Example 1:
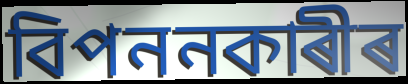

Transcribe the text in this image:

বিপননকাৰীৰ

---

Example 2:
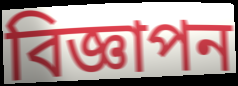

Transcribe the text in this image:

বিজ্ঞাপন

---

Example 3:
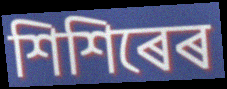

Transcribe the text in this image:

শিশিৰেৰ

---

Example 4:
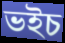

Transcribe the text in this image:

ভইচ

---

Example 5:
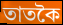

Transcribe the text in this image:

তাতকৈ